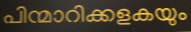
പിന്മാറിക്കളകയും